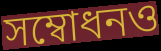
সম্বোধনও